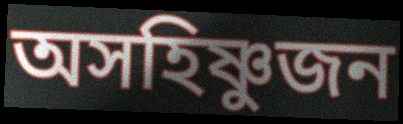
অসহিষ্ণুজন